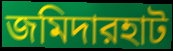
জমিদারহাট